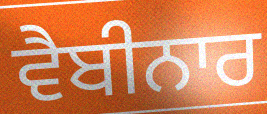
ਵੈਬੀਨਾਰ